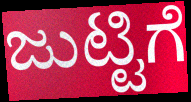
ಜುಟ್ಟಿಗೆ